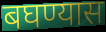
बघण्यास